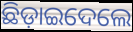
ଛିଡ଼ାଇଦେଲେ